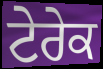
ਟੇਰੇਕ